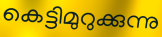
കെട്ടിമുറുക്കുന്നു